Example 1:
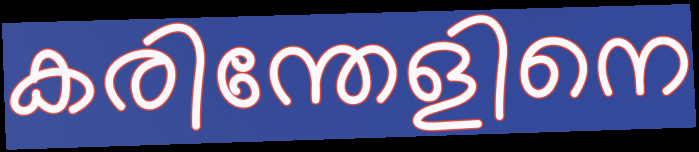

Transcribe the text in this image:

കരിന്തേളിനെ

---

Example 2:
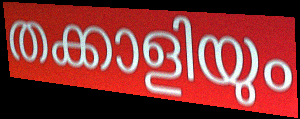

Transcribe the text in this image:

തക്കാളിയും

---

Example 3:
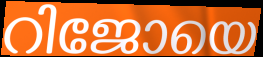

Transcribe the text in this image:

റിജോയെ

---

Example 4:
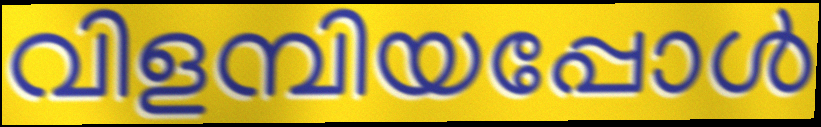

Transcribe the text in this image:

വിളമ്പിയപ്പോൾ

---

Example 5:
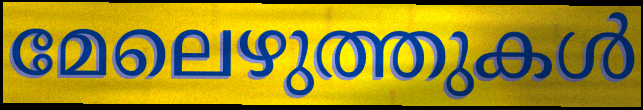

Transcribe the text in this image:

മേലെഴുത്തുകൾ